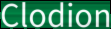
Clodion